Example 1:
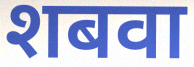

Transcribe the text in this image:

शबवा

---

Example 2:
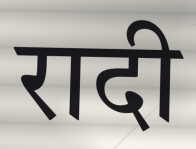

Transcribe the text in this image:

रादी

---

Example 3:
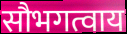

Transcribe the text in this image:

सौभगत्वाय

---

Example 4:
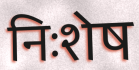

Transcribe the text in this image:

निःशेष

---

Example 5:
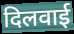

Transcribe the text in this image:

दिलवाई